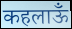
कहलाऊँ